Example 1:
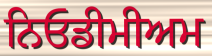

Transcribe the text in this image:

ਨਿਓਡੀਮੀਅਮ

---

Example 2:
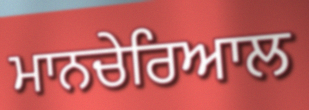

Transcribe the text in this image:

ਮਾਨਚੇਰਿਆਲ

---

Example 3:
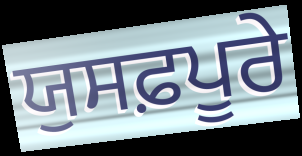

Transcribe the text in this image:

ਯੁਸਫ਼ਪੂਰੇ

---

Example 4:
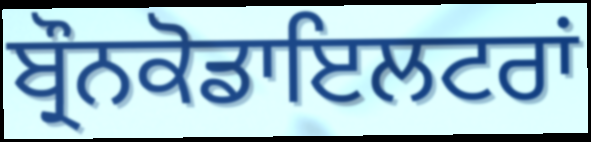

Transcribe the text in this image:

ਬ੍ਰੌਨਕੋਡਾਇਲਟਰਾਂ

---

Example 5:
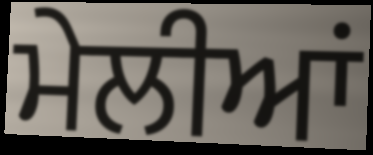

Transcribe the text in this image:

ਮੇਲੀਆਂ